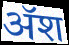
ॲश